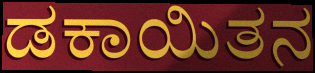
ಡಕಾಯಿತನ